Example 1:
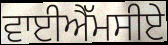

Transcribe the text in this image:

ਵਾਈਐੱਮਸੀਏ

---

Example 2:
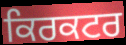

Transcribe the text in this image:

ਕਿਰਕਟਰ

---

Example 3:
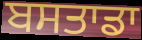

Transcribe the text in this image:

ਬਸਤਾਡਾ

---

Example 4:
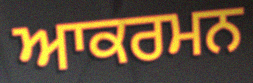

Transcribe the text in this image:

ਆਕਰਮਨ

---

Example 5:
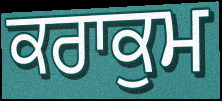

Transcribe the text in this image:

ਕਰਾਕੁਮ